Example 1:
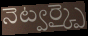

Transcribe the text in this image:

నెట్వర్క్పై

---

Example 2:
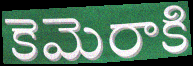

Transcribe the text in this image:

కెమెరాకి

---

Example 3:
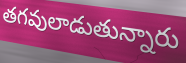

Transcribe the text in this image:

తగవులాడుతున్నారు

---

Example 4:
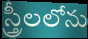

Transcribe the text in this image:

స్త్రీలలోను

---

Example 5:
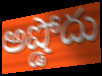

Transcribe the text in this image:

అష్డోదు